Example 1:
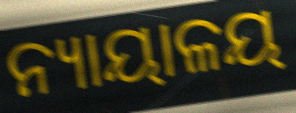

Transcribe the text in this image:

ନ୍ଯାୟାଳୟ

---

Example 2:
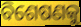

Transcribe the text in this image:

ବିଶେଷଣକୁ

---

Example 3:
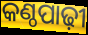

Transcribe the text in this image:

କଣ୍ଠପାଢ଼ୀ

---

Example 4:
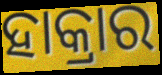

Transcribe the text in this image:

ହାକ୍ରାର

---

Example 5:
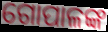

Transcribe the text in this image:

ଗୋପାଳଙ୍କ